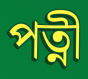
পত্নী